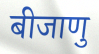
बीजाणु